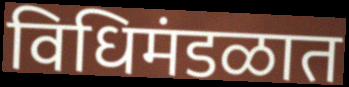
विधिमंडळात